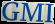
GMI